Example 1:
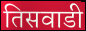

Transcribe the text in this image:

तिसवाडी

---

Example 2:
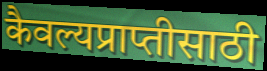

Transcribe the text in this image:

कैवल्यप्राप्तीसाठी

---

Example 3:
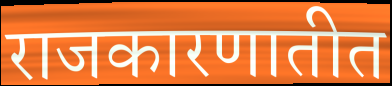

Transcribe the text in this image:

राजकारणातीत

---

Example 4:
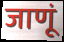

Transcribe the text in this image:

जाणूं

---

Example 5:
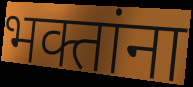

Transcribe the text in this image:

भक्तांना